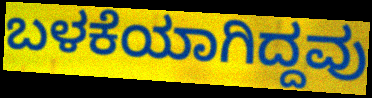
ಬಳಕೆಯಾಗಿದ್ದವು